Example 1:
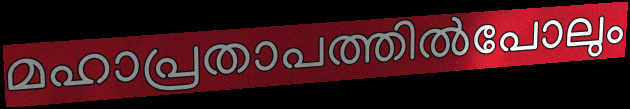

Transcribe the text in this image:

മഹാപ്രതാപത്തിൽപോലും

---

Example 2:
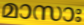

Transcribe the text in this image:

മാസാഃ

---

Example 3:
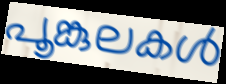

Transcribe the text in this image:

പൂങ്കുലകൾ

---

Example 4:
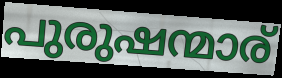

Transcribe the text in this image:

പുരുഷന്മാര്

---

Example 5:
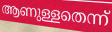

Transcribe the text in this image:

ആണുള്ളതെന്ന്